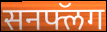
सनफ्लॅग